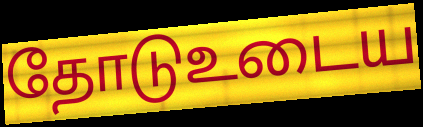
தோடுஉடைய